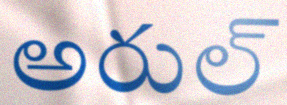
అరుల్